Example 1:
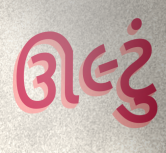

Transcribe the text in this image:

ઊલ્ટું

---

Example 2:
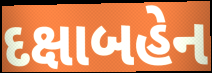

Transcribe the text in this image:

દક્ષાબહેન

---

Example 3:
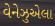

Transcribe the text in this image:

વેનેઝુએલા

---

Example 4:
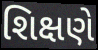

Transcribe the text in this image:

શિક્ષણે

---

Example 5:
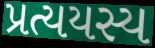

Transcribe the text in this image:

પ્રત્યયસ્ય